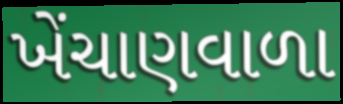
ખેંચાણવાળા